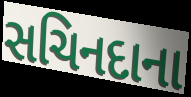
સચિનદાના